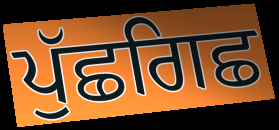
ਪੁੱਛਗਿਛ